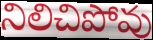
నిలిచిపోవు